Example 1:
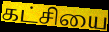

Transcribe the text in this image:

கட்சியை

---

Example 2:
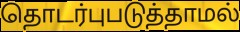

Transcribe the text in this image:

தொடர்புபடுத்தாமல்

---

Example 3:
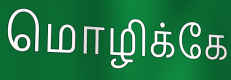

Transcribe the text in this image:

மொழிக்கே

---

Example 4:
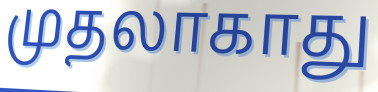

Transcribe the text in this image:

முதலாகாது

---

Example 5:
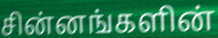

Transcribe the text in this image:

சின்னங்களின்